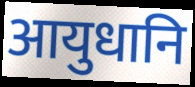
आयुधानि